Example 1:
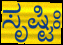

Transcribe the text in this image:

ಸೃಷ್ಟಿಃ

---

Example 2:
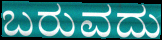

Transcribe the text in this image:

ಬರುವದು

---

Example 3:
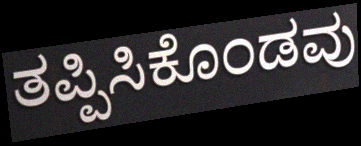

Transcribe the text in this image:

ತಪ್ಪಿಸಿಕೊಂಡವು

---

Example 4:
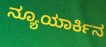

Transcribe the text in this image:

ನ್ಯೂಯಾರ್ಕಿನ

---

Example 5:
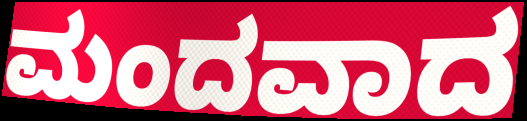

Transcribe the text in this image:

ಮಂದವಾದ